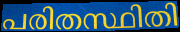
പരിതസ്ഥിതി